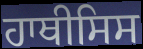
ਹਾਥੀਸਿਸ